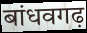
बांधवगढ़